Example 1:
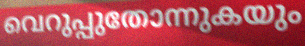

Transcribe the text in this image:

വെറുപ്പുതോന്നുകയും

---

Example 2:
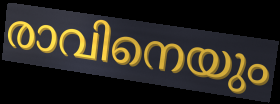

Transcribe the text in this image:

രാവിനെയും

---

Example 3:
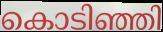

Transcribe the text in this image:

കൊടിഞ്ഞി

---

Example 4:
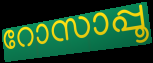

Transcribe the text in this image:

റോസാപ്പൂ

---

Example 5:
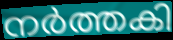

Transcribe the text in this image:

നർത്തകി